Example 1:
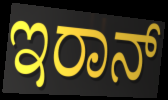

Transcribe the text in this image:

ಇರಾನ್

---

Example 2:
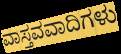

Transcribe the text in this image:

ವಾಸ್ತವವಾದಿಗಳು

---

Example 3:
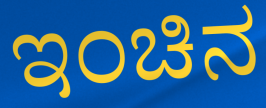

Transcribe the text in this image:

ಇಂಚಿನ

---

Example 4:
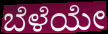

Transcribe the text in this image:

ಬೆಳೆಯೇ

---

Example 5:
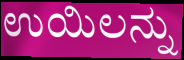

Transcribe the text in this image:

ಉಯಿಲನ್ನು